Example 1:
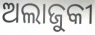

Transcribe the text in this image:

ଅଲାଜୁକୀ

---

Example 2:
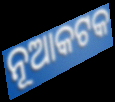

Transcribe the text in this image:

ନୂଆକଟକ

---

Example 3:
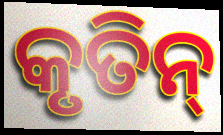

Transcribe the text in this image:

କୃତିନ୍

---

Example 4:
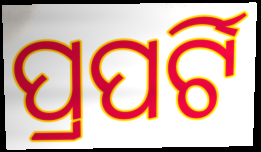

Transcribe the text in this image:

ପ୍ରପର୍ଟି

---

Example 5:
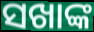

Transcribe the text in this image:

ସଖାଙ୍କ